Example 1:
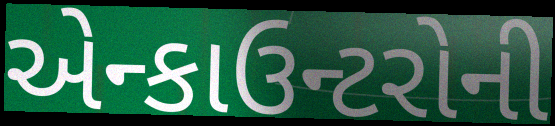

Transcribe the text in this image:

એન્કાઉન્ટરોની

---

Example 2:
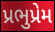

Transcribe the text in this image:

પ્રભુપ્રેમ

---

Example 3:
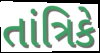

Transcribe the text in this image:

તાંત્રિકે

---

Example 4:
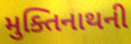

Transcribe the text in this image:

મુક્તિનાથની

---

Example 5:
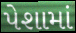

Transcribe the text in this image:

પેશામાં